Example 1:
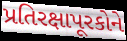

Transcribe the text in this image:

પ્રતિરક્ષાપૂરકોને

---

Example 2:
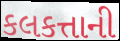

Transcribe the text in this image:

કલકત્તાની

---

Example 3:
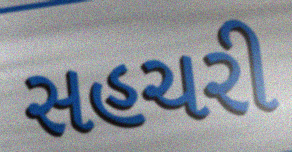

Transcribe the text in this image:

સહચરી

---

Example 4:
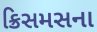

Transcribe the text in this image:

ક્રિસમસના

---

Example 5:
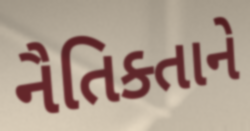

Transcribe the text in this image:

નૈતિક્તાને